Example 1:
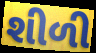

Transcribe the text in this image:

શીળી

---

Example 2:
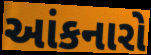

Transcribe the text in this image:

આંકનારો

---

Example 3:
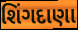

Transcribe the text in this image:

શિંગદાણા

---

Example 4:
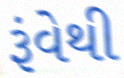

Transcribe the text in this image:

રૂંવેથી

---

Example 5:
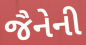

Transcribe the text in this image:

જૈનેની